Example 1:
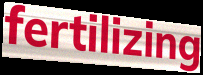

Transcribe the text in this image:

fertilizing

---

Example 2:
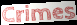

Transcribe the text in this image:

Crimes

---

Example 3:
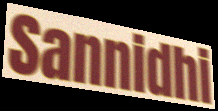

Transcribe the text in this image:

Sannidhi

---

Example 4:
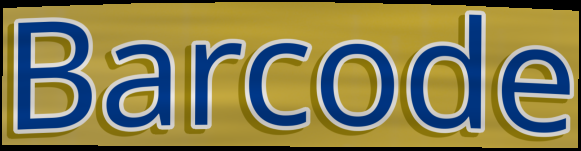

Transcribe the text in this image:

Barcode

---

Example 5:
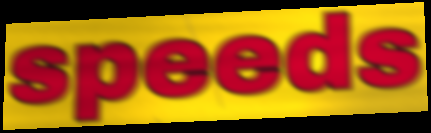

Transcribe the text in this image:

speeds